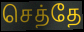
செத்தே